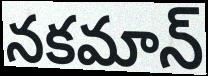
నకమాన్